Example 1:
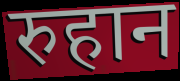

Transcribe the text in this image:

रुहान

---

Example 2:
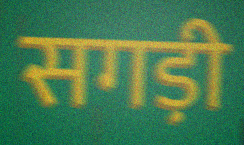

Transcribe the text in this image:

सगड़ी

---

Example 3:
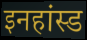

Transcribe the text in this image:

इनहांस्ड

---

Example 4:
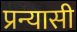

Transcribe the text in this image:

प्रन्यासी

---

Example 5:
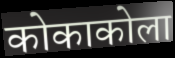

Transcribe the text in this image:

कोकाकोला